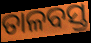
ତାଳବସ୍ତ